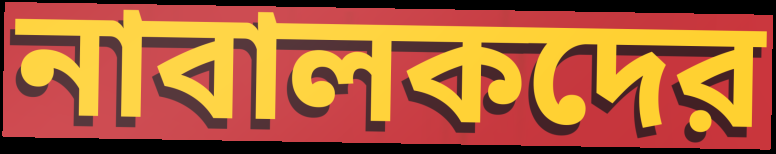
নাবালকদের